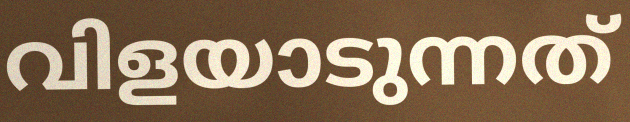
വിളയാടുന്നത്